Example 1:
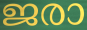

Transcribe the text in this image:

ജരാ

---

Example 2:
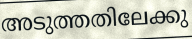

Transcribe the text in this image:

അടുത്തതിലേക്കു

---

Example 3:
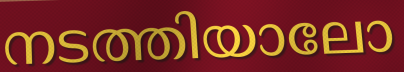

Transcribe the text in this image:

നടത്തിയാലോ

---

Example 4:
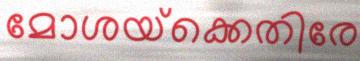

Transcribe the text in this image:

മോശയ്‌ക്കെതിരേ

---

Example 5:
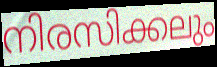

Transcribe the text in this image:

നിരസിക്കലും